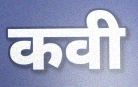
कवी